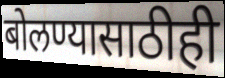
बोलण्यासाठीही